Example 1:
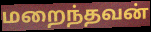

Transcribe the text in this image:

மறைந்தவன்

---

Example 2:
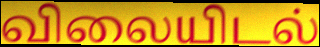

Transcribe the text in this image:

விலையிடல்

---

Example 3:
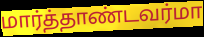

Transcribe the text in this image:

மார்த்தாண்டவர்மா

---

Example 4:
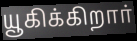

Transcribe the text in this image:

யூகிக்கிறார்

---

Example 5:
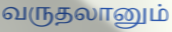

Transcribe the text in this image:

வருதலானும்